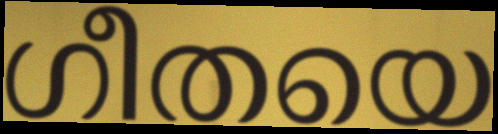
ഗീതയെ